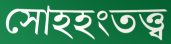
সোহহংতত্ত্ব